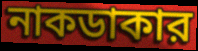
নাকডাকার